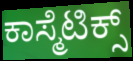
ಕಾಸ್ಮೆಟಿಕ್ಸ್